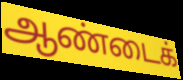
ஆண்டைக்